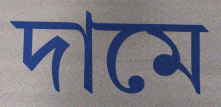
দামে